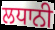
ਲਧਾਨੀ